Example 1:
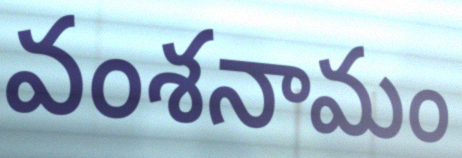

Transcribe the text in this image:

వంశనామం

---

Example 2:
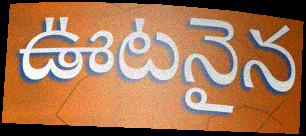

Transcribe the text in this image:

ఊటనైన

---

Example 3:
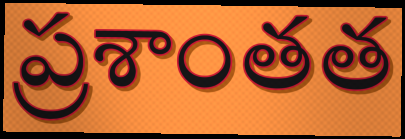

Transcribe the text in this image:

ప్రశాంతత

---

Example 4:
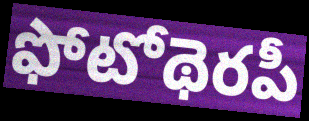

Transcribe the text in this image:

ఫోటోథెరపీ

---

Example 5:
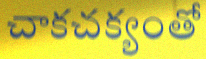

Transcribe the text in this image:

చాకచక్యంతో